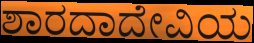
ಶಾರದಾದೇವಿಯ